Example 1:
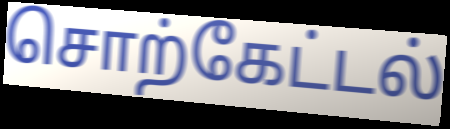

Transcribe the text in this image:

சொற்கேட்டல்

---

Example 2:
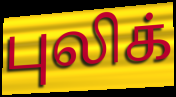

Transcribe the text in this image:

புலிக்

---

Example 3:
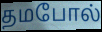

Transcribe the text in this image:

தமபோல்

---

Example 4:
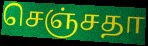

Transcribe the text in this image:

செஞ்சதா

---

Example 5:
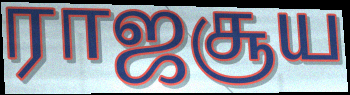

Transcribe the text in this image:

ராஜசூய